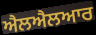
ਐਲਐਲਆਰ